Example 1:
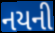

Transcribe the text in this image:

નયની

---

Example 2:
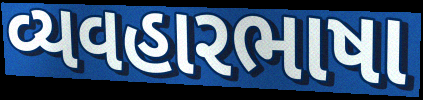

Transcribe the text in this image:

વ્યવહારભાષા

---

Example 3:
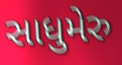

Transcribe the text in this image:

સાધુમેરુ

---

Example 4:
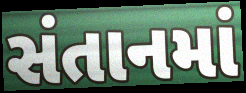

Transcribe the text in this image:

સંતાનમાં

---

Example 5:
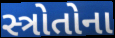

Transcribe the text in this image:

સ્ત્રોતોના